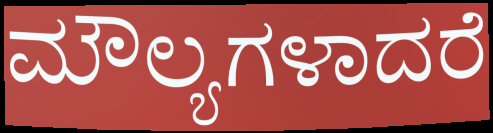
ಮೌಲ್ಯಗಳಾದರೆ